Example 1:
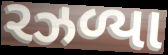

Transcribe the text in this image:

રઝળ્યા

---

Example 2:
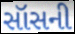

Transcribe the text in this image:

સૉસની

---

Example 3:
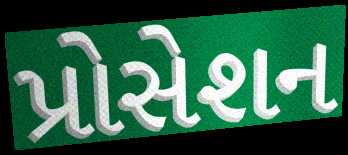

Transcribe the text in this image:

પ્રોસેશન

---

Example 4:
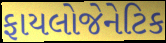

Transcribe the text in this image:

ફાયલોજેનેટિક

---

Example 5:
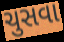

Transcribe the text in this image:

ચુસવા